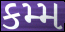
કમ્મ